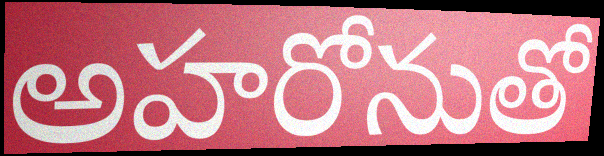
అహరోనుతో